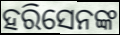
ହରିସେନଙ୍କ